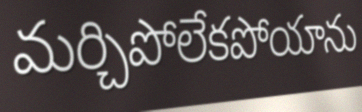
మర్చిపోలేకపోయాను